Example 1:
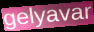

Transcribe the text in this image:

gelyavar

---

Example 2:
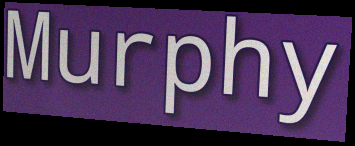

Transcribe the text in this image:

Murphy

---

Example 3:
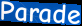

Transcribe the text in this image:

Parade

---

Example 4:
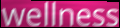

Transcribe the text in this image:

wellness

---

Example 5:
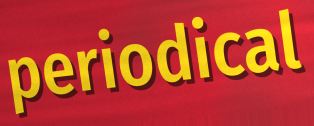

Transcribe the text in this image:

periodical